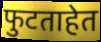
फुटताहेत